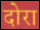
दोरा